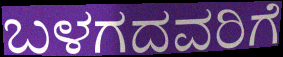
ಬಳಗದವರಿಗೆ